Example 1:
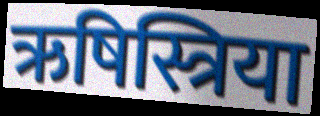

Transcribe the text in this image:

ऋषिस्त्रिया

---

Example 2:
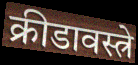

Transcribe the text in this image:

क्रीडावस्त्रे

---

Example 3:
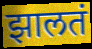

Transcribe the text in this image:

झालतं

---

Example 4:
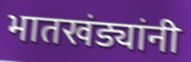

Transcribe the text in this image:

भातखंड्यांनी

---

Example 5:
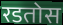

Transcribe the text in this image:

रडतोस